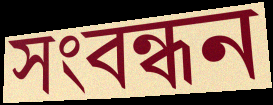
সংবন্ধন